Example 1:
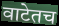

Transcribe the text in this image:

वाटेतच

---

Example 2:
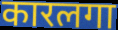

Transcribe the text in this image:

कारलगा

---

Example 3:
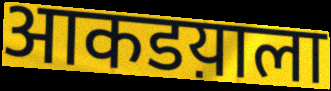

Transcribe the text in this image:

आकडय़ाला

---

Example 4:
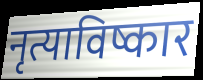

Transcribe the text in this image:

नृत्याविष्कार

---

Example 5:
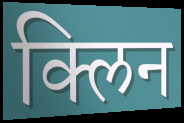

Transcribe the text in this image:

क्लिन